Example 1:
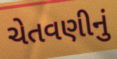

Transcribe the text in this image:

ચેતવણીનું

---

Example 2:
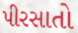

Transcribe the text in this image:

પીરસાતો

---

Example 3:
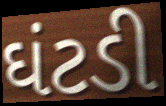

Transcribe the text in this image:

ઘંટડી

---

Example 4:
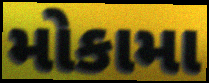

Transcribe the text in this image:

મોકામા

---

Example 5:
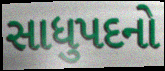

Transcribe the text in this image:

સાધુપદનો